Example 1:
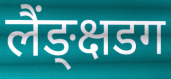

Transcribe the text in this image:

लैंङ्क्षडग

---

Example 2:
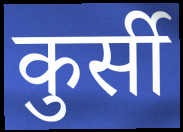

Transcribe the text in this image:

कुर्सी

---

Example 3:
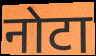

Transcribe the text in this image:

नोटा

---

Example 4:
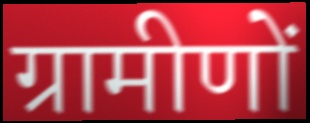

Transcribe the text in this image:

ग्रामीणों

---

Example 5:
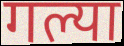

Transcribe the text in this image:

गल्या